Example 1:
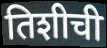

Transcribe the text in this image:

तिशीची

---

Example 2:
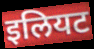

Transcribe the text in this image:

इलियट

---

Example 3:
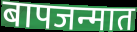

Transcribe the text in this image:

बापजन्मात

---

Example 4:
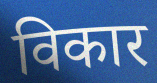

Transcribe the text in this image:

विकार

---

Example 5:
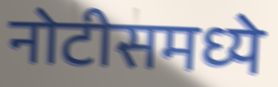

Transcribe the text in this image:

नोटीसमध्ये